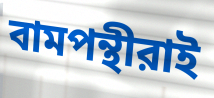
বামপন্থীরাই